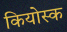
कियोस्क